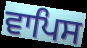
ਵਾਪਿਸ